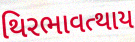
થિરભાવત્થાય